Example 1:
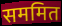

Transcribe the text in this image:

सममित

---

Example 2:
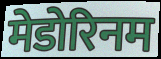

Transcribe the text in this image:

मेडोरिनम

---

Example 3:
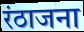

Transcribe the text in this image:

रंठाजना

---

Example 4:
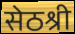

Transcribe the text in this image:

सेठश्री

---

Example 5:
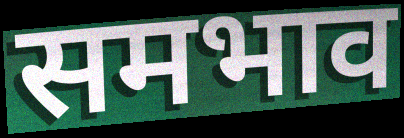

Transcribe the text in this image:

समभाव